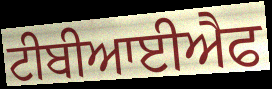
ਟੀਬੀਆਈਐਫ